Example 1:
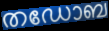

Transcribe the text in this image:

തഡോബ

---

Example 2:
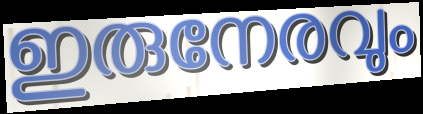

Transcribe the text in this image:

ഇരുനേരവും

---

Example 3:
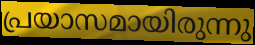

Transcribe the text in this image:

പ്രയാസമായിരുന്നു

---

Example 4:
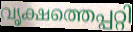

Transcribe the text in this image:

വൃക്ഷത്തെപ്പറ്റി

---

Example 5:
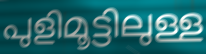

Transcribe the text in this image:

പുളിമൂട്ടിലുള്ള